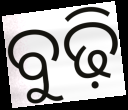
ବୁଢ଼ି